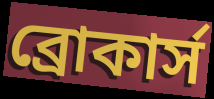
ব্রোকার্স